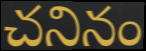
చనినం